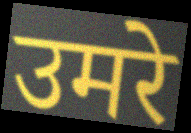
उमरे